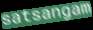
satsangam